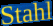
Stahl